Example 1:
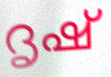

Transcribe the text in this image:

ദൃഷ്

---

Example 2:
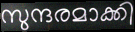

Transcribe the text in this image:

സുന്ദരമാക്കി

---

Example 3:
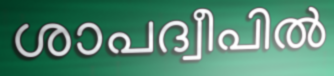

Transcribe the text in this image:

ശാപദ്വീപിൽ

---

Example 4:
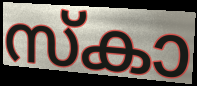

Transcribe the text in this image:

സ്കാ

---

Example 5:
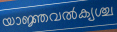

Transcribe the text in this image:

യാജ്ഞവൽക്യശ്ച